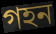
গহন